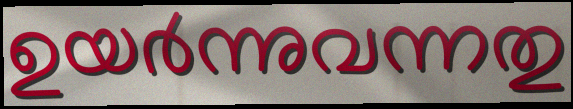
ഉയർന്നുവന്നതു